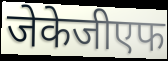
जेकेजीएफ